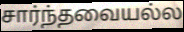
சார்ந்தவையல்ல